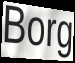
Borg